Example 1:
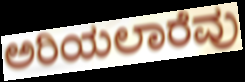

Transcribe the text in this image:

ಅರಿಯಲಾರೆವು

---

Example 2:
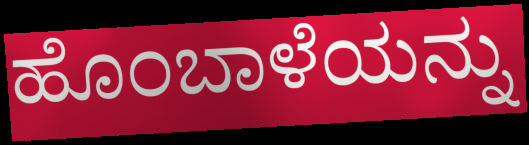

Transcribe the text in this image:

ಹೊಂಬಾಳೆಯನ್ನು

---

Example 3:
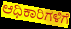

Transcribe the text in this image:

ಆಧಿಕಾರಿಗಳಿಗೆ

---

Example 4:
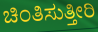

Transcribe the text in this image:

ಚಿಂತಿಸುತ್ತೀರಿ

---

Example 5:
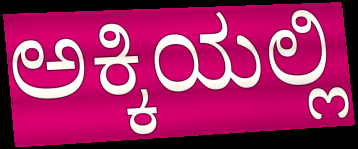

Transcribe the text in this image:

ಅಕ್ಕಿಯಲ್ಲಿ